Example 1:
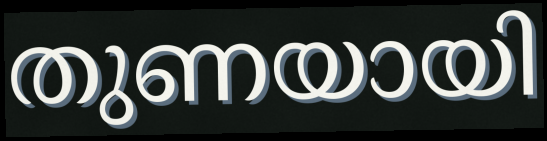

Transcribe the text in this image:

തുണയായി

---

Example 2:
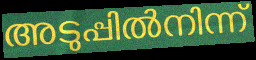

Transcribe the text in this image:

അടുപ്പിൽനിന്ന്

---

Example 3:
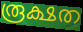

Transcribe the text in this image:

രൂക്ഷത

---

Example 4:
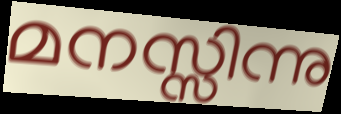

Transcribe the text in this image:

മനസ്സിന്നു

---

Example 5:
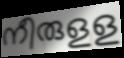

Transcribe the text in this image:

നീരുളള